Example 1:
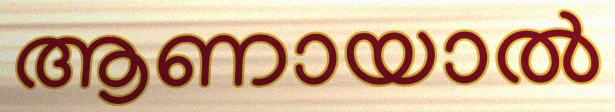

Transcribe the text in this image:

ആണായാൽ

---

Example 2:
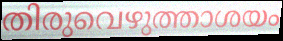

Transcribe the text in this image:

തിരുവെഴുത്താശയം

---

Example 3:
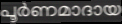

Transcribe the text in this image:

പൂർണമാദായ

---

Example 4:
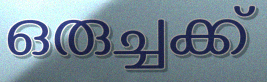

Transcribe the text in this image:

ഒരുച്ചക്ക്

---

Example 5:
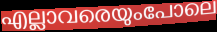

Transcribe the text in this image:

എല്ലാവരെയുംപോലെ